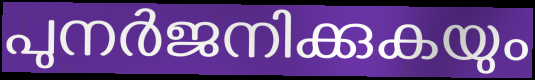
പുനർജനിക്കുകയും